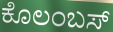
ಕೊಲಂಬಸ್